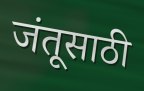
जंतूसाठी